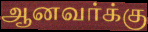
ஆனவர்க்கு